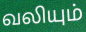
வலியும்